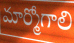
మార్మోగాలి